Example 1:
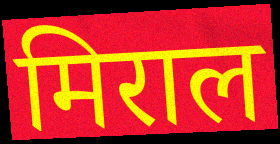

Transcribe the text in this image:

मिराल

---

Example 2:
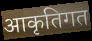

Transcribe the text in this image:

आकृतिगत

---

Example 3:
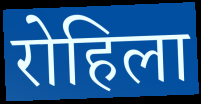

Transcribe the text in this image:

रोहिला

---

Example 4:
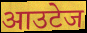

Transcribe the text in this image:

आउटेज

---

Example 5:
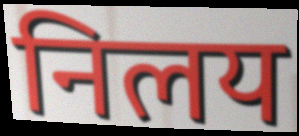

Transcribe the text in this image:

निलय